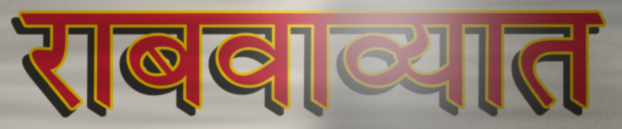
राबवाव्यात